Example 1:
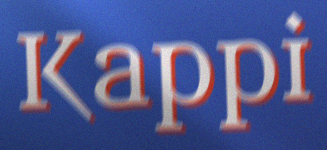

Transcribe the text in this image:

Kappi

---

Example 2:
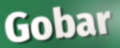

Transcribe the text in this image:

Gobar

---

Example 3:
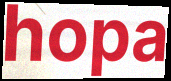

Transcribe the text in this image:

hopa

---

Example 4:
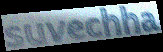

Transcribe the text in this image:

suvechha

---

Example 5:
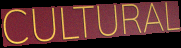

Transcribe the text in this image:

CULTURAL